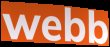
webb